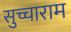
सुच्चाराम